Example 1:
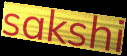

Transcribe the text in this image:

sakshi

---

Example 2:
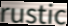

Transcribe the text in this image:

rustic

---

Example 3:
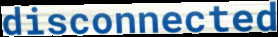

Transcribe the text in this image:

disconnected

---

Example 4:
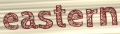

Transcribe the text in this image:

eastern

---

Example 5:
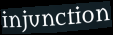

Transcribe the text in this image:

injunction